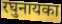
रघुनायका